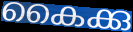
കൈക്കു